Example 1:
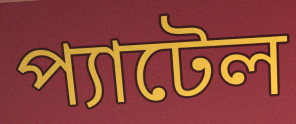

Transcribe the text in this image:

প্যাটেল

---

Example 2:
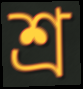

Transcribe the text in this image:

শ্র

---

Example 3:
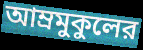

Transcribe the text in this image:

আম্রমুকুলের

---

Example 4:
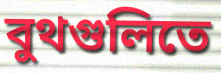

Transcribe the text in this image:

বুথগুলিতে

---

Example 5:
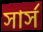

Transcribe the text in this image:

সার্স